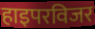
हाइपरविजर